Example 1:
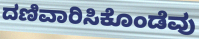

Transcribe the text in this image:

ದಣಿವಾರಿಸಿಕೊಂಡೆವು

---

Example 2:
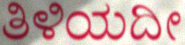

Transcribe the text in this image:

ತಿಳಿಯದೀ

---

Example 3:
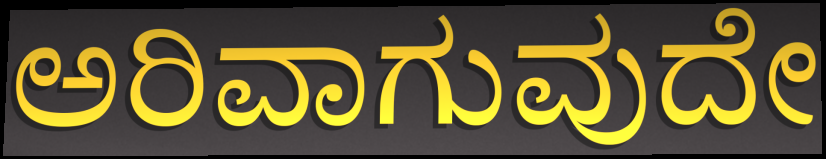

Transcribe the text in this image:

ಅರಿವಾಗುವುದೇ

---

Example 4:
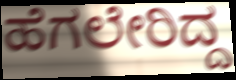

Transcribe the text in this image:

ಹೆಗಲೇರಿದ್ದ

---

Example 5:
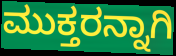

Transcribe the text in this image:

ಮುಕ್ತರನ್ನಾಗಿ